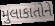
મુલાકાતોને